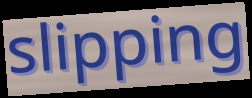
slipping